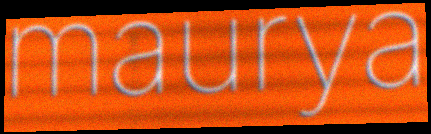
maurya